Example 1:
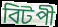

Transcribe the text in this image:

বিটপী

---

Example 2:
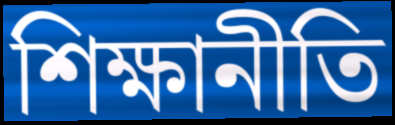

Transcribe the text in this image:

শিক্ষানীতি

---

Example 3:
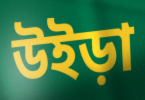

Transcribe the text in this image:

উইড়া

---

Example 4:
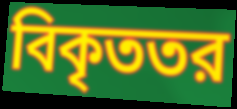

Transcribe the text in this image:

বিকৃততর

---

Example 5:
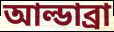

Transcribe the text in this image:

আল্ডাব্রা